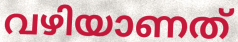
വഴിയാണത്